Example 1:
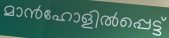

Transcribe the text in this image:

മാൻഹോളിൽപ്പെട്ട്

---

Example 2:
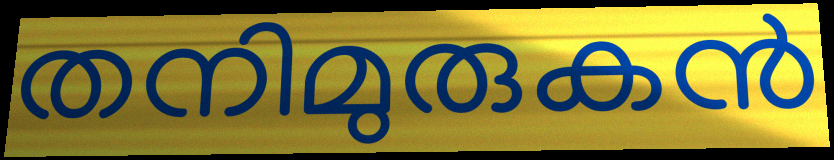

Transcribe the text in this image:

തനിമുരുകൻ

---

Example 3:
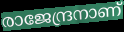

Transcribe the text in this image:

രാജേന്ദ്രനാണ്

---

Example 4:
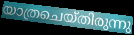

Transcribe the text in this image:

യാത്രചെയ്തിരുന്നു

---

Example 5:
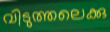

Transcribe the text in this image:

വിടുത്തലെക്കു